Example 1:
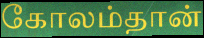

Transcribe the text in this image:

கோலம்தான்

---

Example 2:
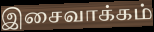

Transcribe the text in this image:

இசைவாக்கம்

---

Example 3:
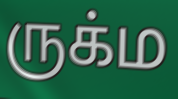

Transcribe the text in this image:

ருக்ம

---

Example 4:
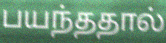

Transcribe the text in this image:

பயந்ததால்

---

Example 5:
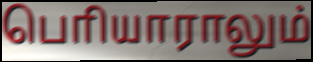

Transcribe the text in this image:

பெரியாராலும்